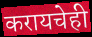
करायचेही